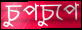
চুপচুপে